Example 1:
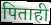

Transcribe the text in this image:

पिताही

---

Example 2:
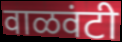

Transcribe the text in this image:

वाळवंटी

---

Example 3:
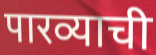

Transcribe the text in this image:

पारव्याची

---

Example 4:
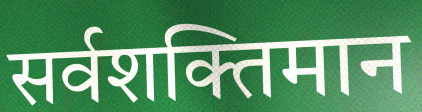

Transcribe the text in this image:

सर्वशक्तिमान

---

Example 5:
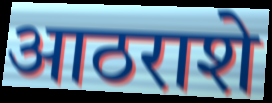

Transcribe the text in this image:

आठराशे